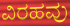
ವಿರಹವು